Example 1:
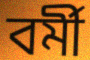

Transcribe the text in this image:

বৰ্মী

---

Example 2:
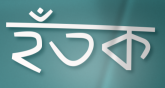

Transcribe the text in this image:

হঁতক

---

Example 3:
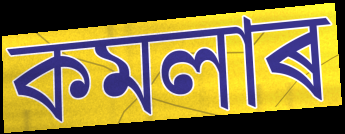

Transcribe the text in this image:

কমলাৰ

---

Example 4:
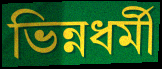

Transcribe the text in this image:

ভিন্নধৰ্মী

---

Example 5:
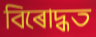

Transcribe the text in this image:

বিৰোদ্ধত